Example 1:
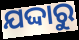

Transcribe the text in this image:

ଯଦ୍ଦାରୁ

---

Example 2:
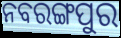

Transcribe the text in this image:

ନବରଙ୍ଗପୁର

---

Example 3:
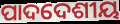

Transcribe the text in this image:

ପାଦଦେଶୀୟ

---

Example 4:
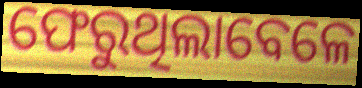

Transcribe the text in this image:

ଫେରୁଥିଲାବେଳେ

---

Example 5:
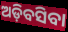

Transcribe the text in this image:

ଅଡ଼ିବସିବା